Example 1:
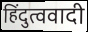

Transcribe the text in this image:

हिंदुत्ववादी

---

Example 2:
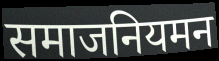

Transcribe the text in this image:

समाजनियमन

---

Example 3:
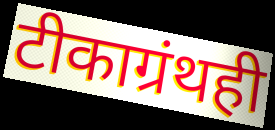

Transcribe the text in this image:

टीकाग्रंथही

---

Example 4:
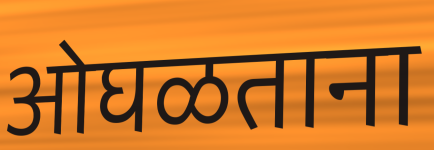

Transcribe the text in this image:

ओघळताना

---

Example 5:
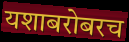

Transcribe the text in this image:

यशाबरोबरच